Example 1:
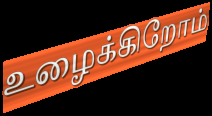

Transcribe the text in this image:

உழைக்கிறோம்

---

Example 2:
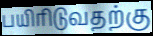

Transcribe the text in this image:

பயிரிடுவதற்கு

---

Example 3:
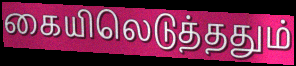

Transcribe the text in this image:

கையிலெடுத்ததும்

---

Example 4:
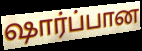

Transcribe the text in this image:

ஷார்ப்பான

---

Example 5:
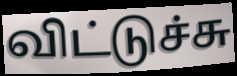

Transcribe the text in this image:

விட்டுச்சு